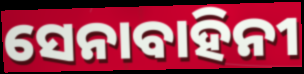
ସେନାବାହିନୀ